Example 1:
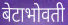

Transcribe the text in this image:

बेटाभोवती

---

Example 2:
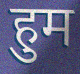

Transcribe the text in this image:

हुम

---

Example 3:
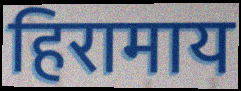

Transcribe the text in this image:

हिरामाय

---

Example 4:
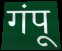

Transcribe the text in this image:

गंपू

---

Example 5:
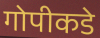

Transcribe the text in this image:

गोपीकडे